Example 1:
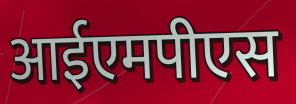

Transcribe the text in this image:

आईएमपीएस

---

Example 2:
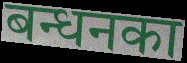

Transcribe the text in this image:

बन्धनका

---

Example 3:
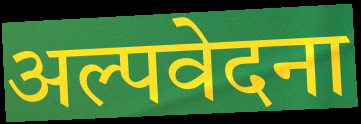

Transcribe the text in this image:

अल्पवेदना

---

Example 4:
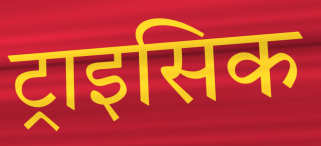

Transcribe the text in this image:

ट्राइसिक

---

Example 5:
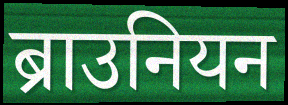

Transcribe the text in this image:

ब्राउनियन